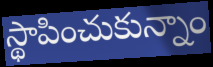
స్థాపించుకున్నాం